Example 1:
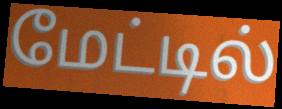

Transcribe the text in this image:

மேட்டில்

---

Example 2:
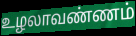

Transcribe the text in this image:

உழலாவண்ணம்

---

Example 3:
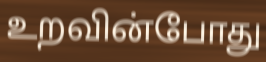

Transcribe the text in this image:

உறவின்போது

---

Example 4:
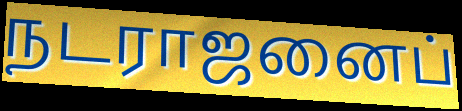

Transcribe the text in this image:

நடராஜனைப்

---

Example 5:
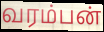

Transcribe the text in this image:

வரம்பன்